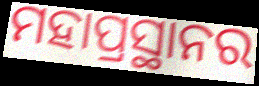
ମହାପ୍ରସ୍ଥାନର